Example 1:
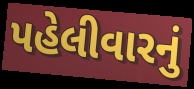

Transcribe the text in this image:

પહેલીવારનું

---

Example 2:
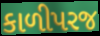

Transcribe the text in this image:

કાળીપરજ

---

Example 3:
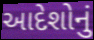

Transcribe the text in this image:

આદેશોનું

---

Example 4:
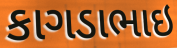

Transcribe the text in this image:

કાગડાભાઇ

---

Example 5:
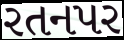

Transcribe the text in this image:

રતનપર